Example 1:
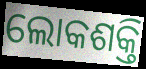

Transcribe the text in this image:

ଲୋକଶକ୍ତି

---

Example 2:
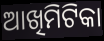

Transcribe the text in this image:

ଆଖିମିଟିକା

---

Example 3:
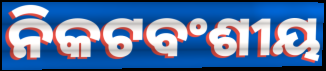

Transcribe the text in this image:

ନିକଟବଂଶୀୟ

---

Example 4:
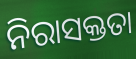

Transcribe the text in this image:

ନିରାସକ୍ତତା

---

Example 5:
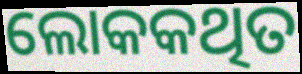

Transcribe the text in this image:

ଲୋକକଥିତ